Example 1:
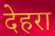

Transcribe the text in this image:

देहरा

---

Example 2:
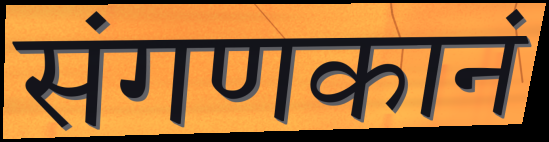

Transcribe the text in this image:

संगणकानं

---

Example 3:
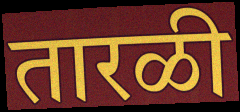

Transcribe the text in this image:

तारळी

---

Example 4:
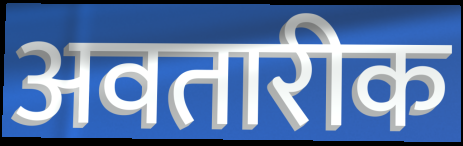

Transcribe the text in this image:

अवतारीक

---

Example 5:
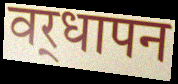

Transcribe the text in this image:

वर्धापन